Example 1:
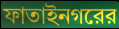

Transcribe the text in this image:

ফাতাইনগরের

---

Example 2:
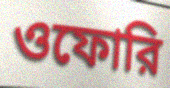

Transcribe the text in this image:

ওফোরি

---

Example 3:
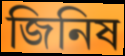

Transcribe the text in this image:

জিনিষ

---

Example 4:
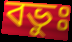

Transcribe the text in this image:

বভুঃ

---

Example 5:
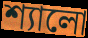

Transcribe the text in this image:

শ্যালো